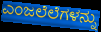
ಎಂಜಲೆಲೆಗಳನ್ನು